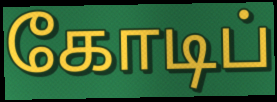
கோடிப்